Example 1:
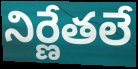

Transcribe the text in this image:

నిర్ణేతలే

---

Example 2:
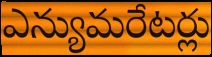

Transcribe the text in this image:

ఎన్యుమరేటర్లు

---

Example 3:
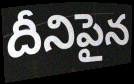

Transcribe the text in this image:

దీనిపైన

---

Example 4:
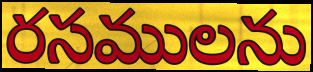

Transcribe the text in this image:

రసములను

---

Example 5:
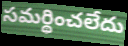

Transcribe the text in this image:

సమర్థించలేదు